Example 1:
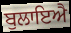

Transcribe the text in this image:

ਬੁਲਾਇਐ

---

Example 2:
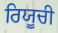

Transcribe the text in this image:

ਰਿਯੂਚੀ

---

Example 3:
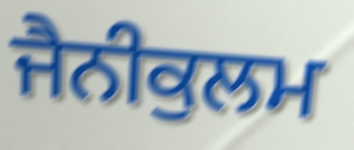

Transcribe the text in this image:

ਜੈਨੀਕੁਲਮ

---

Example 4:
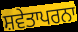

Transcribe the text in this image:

ਸ਼ਵੇਤਾਪਰਨਾ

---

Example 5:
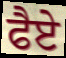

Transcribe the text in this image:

ਫੈਏ